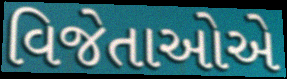
વિજેતાઓએ